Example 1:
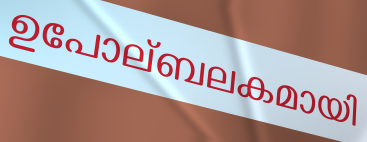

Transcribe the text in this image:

ഉപോല്ബലകമായി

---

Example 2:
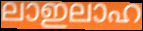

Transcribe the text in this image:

ലാഇലാഹ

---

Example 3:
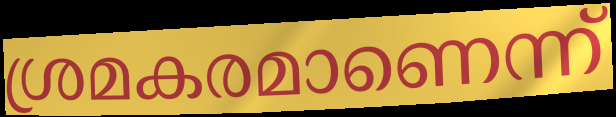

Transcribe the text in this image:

ശ്രമകരമാണെന്ന്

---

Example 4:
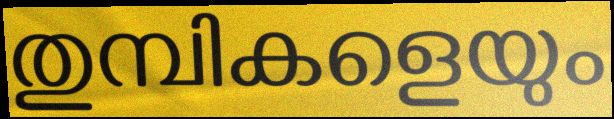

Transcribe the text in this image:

തുമ്പികളെയും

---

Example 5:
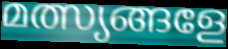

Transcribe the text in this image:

മത്സ്യങ്ങളേ